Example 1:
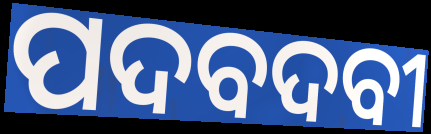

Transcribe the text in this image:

ପଦବଦବୀ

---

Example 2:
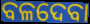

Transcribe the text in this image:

ବଳଦେବା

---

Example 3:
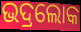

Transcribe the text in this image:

ଭଦ୍ରଲୋକ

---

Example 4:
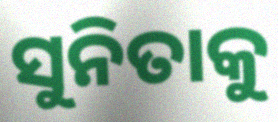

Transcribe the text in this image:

ସୁନିତାକୁ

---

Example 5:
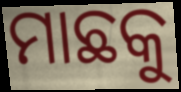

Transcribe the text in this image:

ମାଛକୁ